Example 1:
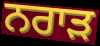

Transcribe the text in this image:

ਨਰਾੜ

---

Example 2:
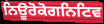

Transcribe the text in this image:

ਨਿਊਰੋਕੋਗਨਿਟਿਵ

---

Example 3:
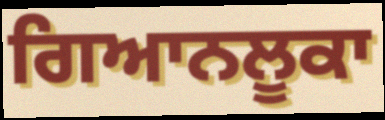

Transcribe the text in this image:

ਗਿਆਨਲੂਕਾ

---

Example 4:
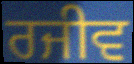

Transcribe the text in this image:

ਰਜੀਵ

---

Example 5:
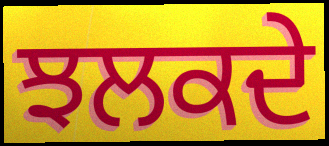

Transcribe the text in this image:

ਝਲਕਦੇ